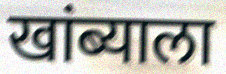
खांब्याला